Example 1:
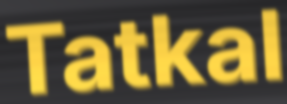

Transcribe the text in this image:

Tatkal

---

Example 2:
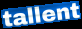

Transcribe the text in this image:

tallent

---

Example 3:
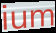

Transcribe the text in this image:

ium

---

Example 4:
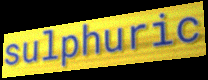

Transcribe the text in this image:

sulphuric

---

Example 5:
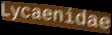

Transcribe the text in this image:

Lycaenidae